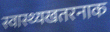
स्वास्थ्यखतरनाक